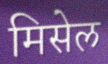
मिसेल